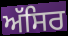
ਅੱਸਿਰ